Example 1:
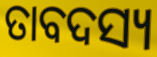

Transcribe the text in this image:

ତାବଦସ୍ୟ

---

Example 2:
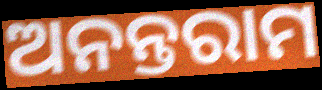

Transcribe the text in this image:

ଅନନ୍ତରାମ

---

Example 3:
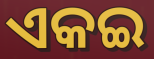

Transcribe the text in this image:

ଏକଇ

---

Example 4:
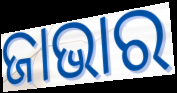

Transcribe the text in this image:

ଜାଭାର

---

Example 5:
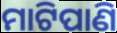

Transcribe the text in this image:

ମାଟିପାଣି